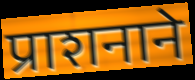
प्राशनाने